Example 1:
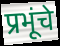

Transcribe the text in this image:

प्रभूंचे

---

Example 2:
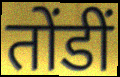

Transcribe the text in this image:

तोंडीं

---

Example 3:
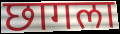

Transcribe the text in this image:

छागला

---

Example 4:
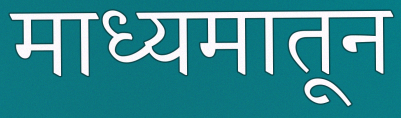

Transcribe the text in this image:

माध्यमातून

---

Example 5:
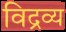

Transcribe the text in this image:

विद्रव्य